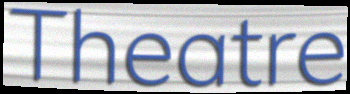
Theatre